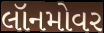
લૉનમોવર